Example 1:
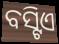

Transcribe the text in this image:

ବସ୍ଟିଏ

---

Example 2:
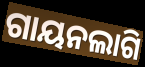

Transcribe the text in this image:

ଗାୟନଲାଗି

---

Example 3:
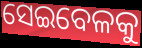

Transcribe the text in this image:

ସେଇବେଳକୁ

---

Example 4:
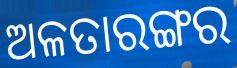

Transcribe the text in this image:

ଅଳତାରଙ୍ଗର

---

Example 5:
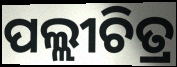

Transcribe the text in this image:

ପଲ୍ଲୀଚିତ୍ର